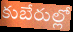
కుబేరుల్లో